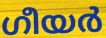
ഗീയർ